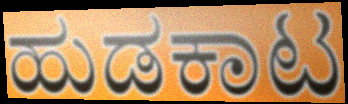
ಹುಡಕಾಟ